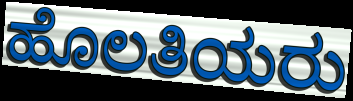
ಹೊಲತಿಯರು